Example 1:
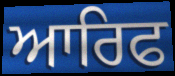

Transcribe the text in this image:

ਆਰਿਫ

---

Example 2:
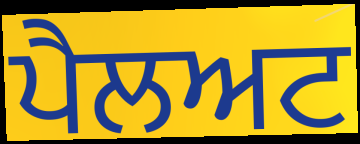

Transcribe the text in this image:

ਪੈਲਅਟ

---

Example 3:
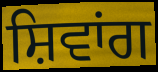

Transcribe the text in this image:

ਸ਼ਿਵਾਂਗ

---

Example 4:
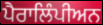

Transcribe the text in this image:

ਪੈਰਾਲਿੰਪੀਅਨ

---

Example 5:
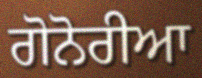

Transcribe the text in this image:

ਗੋਨੋਰੀਆ